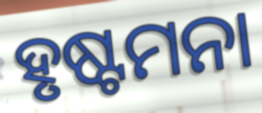
ହୃଷ୍ଟମନା